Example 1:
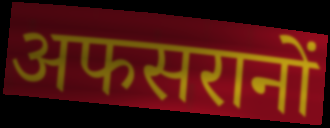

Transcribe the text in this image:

अफसरानों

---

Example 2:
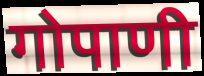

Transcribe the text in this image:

गोपाणी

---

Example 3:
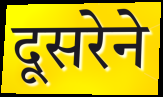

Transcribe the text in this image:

दूसरेने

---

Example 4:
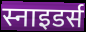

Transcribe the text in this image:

स्नाइडर्स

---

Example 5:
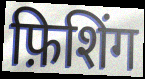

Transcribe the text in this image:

फ़िशिंग